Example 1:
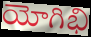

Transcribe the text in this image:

యోగిభి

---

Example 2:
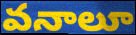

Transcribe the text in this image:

వనాలూ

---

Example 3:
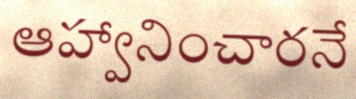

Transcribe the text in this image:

ఆహ్వానించారనే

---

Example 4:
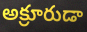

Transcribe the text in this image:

అక్రూరుడా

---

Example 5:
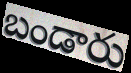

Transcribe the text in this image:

బండారు